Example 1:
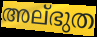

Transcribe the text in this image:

അല്ഭുത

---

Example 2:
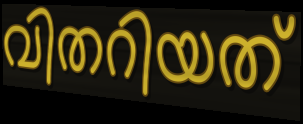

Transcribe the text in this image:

വിതറിയത്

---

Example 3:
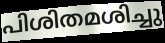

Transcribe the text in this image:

പിശിതമശിച്ചു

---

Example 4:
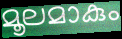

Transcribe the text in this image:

മൂലമാകും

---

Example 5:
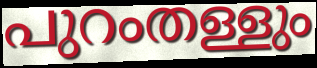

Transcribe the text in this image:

പുറംതള്ളും